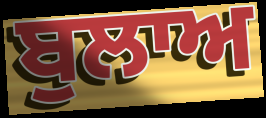
ਬੁਲਾਅ